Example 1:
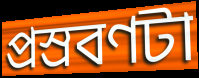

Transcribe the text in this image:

প্রস্রবণটা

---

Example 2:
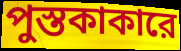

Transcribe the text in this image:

পুস্তকাকারে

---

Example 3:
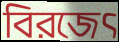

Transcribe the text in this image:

বিরজেৎ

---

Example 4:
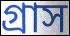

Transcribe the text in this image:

গ্রাস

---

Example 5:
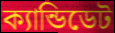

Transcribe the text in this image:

ক্যান্ডিডেট